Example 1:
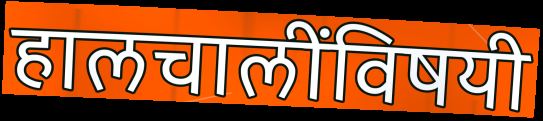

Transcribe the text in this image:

हालचालींविषयी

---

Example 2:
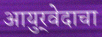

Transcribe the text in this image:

आयुर्वेदाचा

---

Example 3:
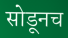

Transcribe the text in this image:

सोडूनच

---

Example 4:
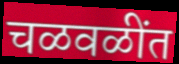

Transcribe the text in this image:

चळवळींत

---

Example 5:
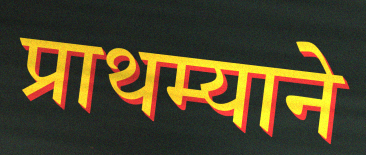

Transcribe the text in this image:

प्राथम्याने